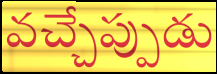
వచ్చేప్పుడు